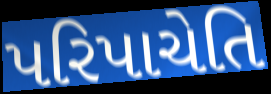
પરિપાચેતિ